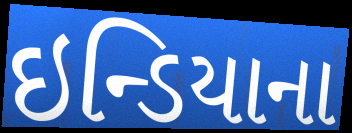
ઇન્ડિયાના